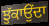
ਝੁੱਕਾਉਂਦਾ